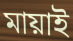
মায়াই